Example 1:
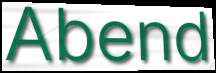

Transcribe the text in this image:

Abend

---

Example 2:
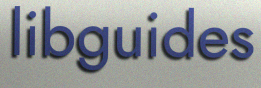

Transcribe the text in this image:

libguides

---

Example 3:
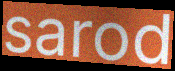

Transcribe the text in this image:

sarod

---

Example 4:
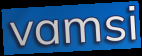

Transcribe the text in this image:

vamsi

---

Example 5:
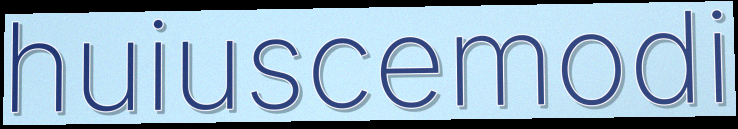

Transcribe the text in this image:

huiuscemodi